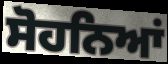
ਸੋਹਨਿਆਂ